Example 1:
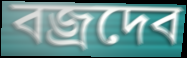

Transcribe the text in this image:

বজ্রদেব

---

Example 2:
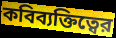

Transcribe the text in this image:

কবিব্যক্তিত্বের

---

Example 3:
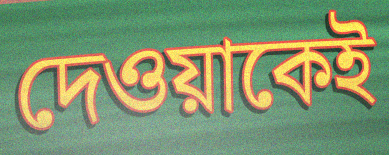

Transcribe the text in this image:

দেওয়াকেই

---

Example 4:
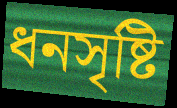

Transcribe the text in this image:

ধনসৃষ্টি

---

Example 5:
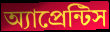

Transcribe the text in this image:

অ্যাপ্রেন্টিস